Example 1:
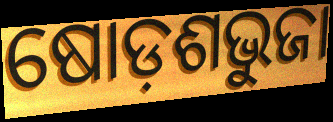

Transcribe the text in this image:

ଷୋଡ଼ଶଭୁଜା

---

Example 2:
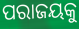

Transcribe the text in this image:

ପରାଜୟକୁ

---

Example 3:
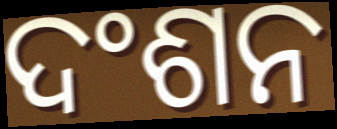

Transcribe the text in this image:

ଦଂଶନ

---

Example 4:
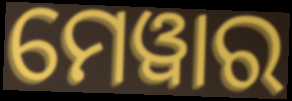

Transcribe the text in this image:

ମେୱାର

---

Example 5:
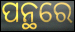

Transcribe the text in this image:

ପନ୍ଥରେ